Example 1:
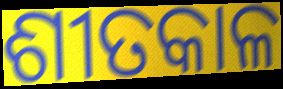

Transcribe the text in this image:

ଶୀତକାଳ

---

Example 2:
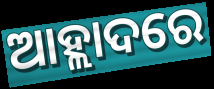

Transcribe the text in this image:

ଆହ୍ଲାଦରେ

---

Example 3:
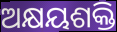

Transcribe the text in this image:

ଅକ୍ଷୟଶକ୍ତି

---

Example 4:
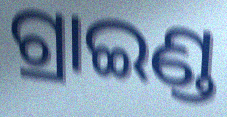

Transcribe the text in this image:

ଗ୍ରାଇଣ୍ଡ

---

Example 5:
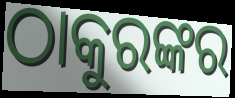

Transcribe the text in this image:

ଠାକୁରଙ୍କର